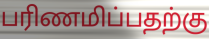
பரிணமிப்பதற்கு